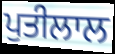
ਪੁਤੀਲਾਲ